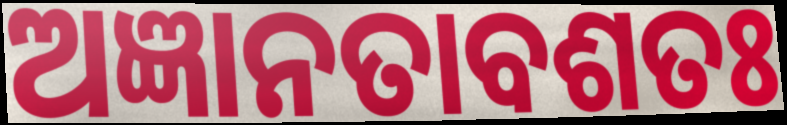
ଅଜ୍ଞାନତାବଶତଃ